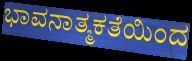
ಭಾವನಾತ್ಮಕತೆಯಿಂದ